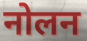
नोलन